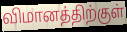
விமானத்திற்குள்